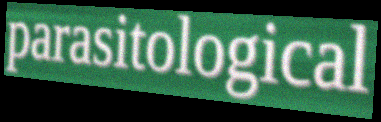
parasitological